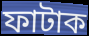
ফাটাক